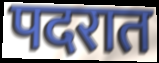
पदरात